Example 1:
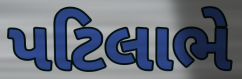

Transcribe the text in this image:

પટિલાભે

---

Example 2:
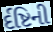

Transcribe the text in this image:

ર્દષ્ટિની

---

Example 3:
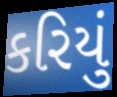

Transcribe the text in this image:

કરિયું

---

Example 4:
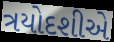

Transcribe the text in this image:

ત્રયોદશીએ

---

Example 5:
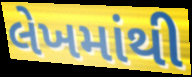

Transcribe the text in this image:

લેખમાંથી